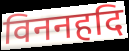
विननहदि